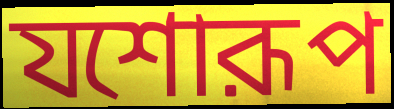
যশোরূপ